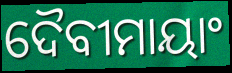
ଦୈବୀମାୟାଂ